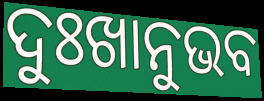
ଦୁଃଖାନୁଭବ